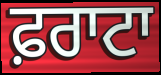
ਫ਼ਰਾਟਾ